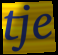
tje